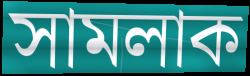
সামলাক